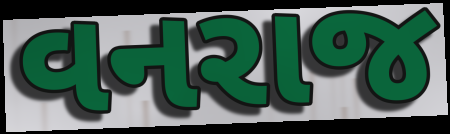
વનરાજ